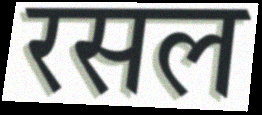
रसल